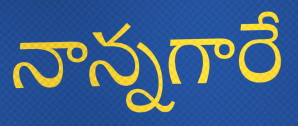
నాన్నగారే